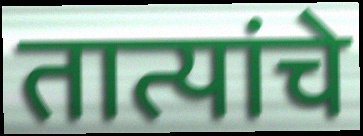
तात्यांचे